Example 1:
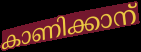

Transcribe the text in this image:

കാണിക്കാന്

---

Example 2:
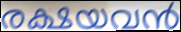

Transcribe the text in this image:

രക്ഷയവൻ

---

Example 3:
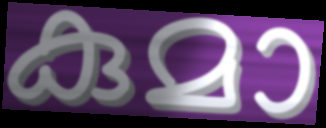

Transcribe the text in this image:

കുമാ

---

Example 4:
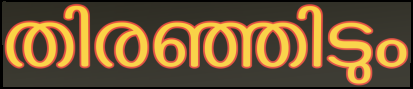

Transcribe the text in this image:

തിരഞ്ഞിടും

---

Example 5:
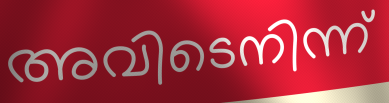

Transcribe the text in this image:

അവിടെനിന്ന്